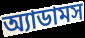
অ্যাডামস